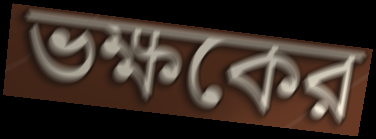
ভক্ষকের